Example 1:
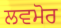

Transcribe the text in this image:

ਲਵਮੋਰ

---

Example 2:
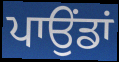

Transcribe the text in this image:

ਪਾਉਂਡਾਂ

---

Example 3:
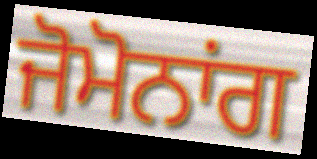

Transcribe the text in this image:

ਜੋਮੋਨਾਂਗ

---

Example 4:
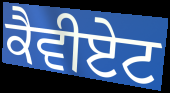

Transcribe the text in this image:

ਕੈਵੀਏਟ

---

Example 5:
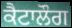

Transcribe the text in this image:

ਕੈਟਾਲੌਗ